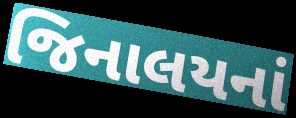
જિનાલયનાં